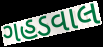
ગહડવાલ